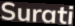
Surati